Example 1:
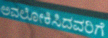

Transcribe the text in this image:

ಅವಲೋಕಿಸಿದವರಿಗೆ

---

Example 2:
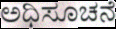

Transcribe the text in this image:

ಅಧಿಸೂಚನೆ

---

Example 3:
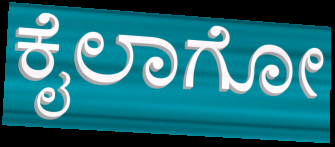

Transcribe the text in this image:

ಕೈಲಾಗೋ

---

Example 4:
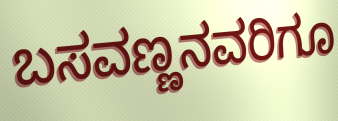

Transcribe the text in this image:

ಬಸವಣ್ಣನವರಿಗೂ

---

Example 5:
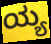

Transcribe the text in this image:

ಯ್ಯ